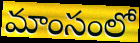
మాంసంలో